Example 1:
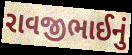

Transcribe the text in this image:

રાવજીભાઈનું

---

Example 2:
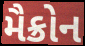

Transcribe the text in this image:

મૈક્રોન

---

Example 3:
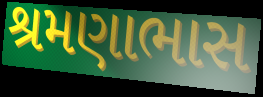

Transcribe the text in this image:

શ્રમણાભાસ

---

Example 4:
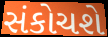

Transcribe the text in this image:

સંકોચશે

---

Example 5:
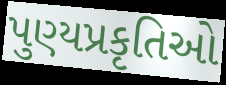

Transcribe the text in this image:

પુણ્યપ્રકૃતિઓ